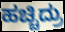
ಹಚ್ಚಿದ್ರು